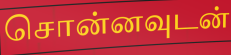
சொன்னவுடன்